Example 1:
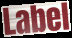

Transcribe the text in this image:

Label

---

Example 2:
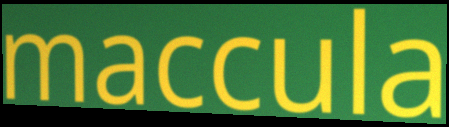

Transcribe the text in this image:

maccula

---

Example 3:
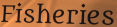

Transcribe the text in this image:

Fisheries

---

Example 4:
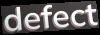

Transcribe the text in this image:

defect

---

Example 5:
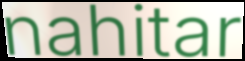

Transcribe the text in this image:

nahitar